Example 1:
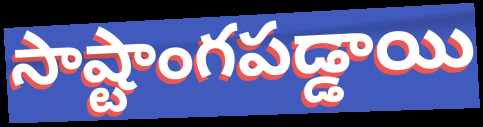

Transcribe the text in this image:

సాష్టాంగపడ్డాయి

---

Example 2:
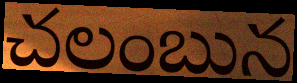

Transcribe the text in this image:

చలంబున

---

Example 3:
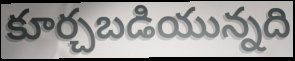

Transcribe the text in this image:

కూర్చబడియున్నది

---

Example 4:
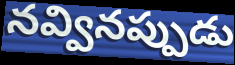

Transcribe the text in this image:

నవ్వినప్పుడు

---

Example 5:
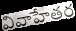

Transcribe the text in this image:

వివాహేతర